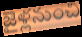
జైళ్లనుంచి